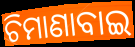
ଚିମାଣାବାଇ